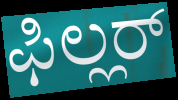
ಫಿಲ್ಲರ್